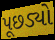
પૂછડ્યો